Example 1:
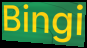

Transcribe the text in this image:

Bingi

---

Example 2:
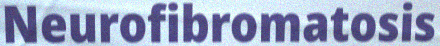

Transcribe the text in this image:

Neurofibromatosis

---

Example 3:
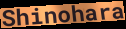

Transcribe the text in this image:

Shinohara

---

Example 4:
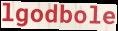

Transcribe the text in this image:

lgodbole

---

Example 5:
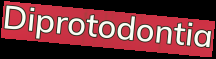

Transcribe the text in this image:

Diprotodontia